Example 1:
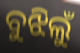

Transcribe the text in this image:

ବୁଝିଲୁଁ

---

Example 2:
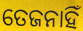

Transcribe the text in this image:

ତେଜନାହିଁ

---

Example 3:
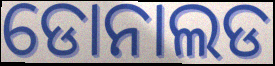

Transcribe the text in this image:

ଡୋନାଲଡ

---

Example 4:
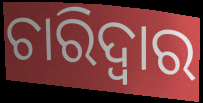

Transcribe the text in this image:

ଚାରିଦ୍ୱାର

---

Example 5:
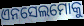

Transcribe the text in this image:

ଏନସେଲମୋକୁ